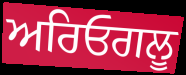
ਅਰਿਓਗਲੂ